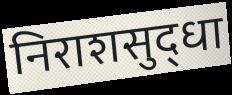
निराशसुद्धा